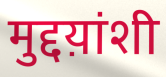
मुद्दय़ांशी